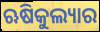
ଋଷିକୁଲ୍ୟାର